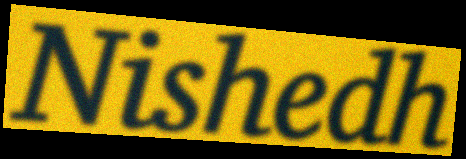
Nishedh